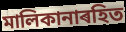
মালিকানাৰহিত